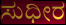
ಸುಧೀರ